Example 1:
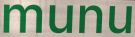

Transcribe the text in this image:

munu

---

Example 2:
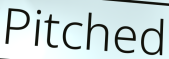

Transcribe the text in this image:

Pitched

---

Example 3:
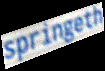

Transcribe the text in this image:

springeth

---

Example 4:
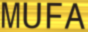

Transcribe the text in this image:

MUFA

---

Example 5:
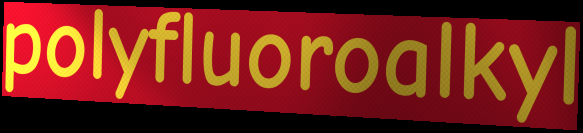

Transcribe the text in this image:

polyfluoroalkyl